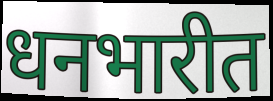
धनभारीत